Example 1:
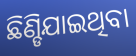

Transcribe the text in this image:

ଛିଣ୍ଡିଯାଇଥିବା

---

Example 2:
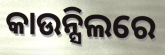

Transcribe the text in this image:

କାଉନ୍ସିଲରେ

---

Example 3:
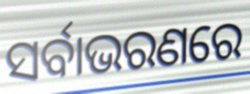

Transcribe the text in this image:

ସର୍ବାଭରଣରେ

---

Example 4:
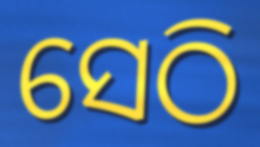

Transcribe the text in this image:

ସେଠି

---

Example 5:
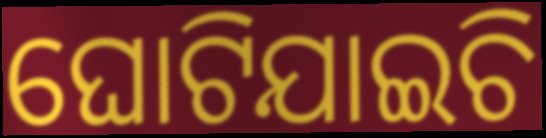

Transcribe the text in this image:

ଘୋଟିଯାଇଚି